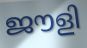
ജൗളി